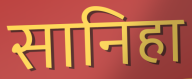
सानिहा